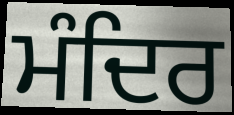
ਮੰਦਿਰ